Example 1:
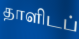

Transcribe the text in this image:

தாளிடப்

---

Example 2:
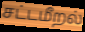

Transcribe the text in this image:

சட்டமீறல்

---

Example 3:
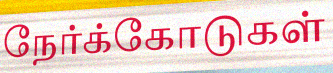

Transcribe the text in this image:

நேர்க்கோடுகள்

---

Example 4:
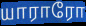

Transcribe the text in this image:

யாராரோ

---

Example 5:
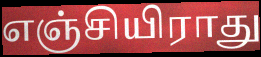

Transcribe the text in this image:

எஞ்சியிராது